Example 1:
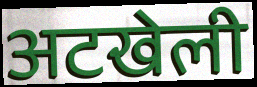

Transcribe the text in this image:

अटखेली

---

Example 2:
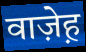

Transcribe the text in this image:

वाज़ेह़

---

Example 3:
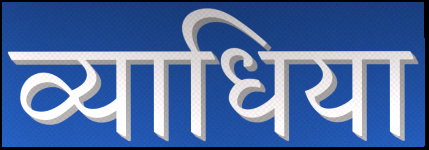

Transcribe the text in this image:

व्याधिया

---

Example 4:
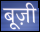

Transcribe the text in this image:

बूज़ी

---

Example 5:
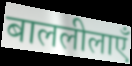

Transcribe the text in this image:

बाललीलाएँ